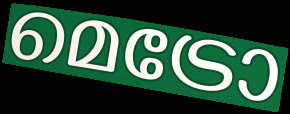
മെട്രോ